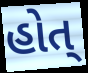
હોત્